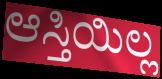
ಆಸ್ತಿಯಿಲ್ಲ